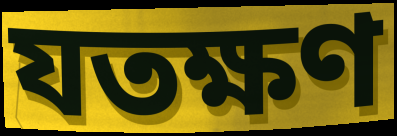
যতক্ষণ